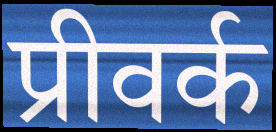
प्रीवर्क